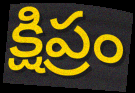
క్షిప్రం